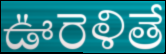
ఊరెళితే